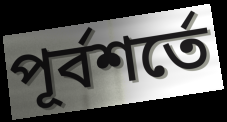
পূর্বশর্তে